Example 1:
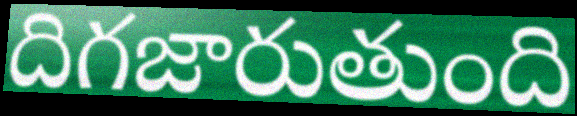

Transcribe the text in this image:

దిగజారుతుంది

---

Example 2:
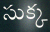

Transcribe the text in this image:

సుక్క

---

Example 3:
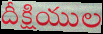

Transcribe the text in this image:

దీక్షియుల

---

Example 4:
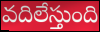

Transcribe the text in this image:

వదిలేస్తుంది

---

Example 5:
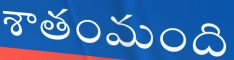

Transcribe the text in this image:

శాతంమంది